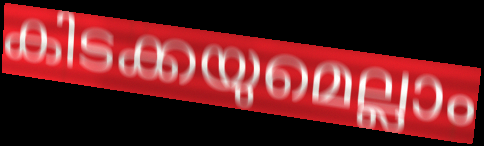
കിടക്കയുമെല്ലാം